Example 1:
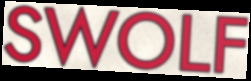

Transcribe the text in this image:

SWOLF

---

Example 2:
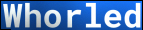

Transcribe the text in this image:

Whorled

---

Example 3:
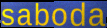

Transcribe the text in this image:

saboda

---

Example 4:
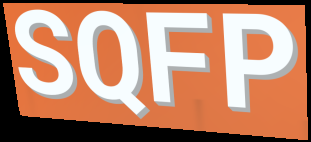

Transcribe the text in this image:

SQFP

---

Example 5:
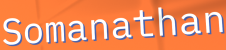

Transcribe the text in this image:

Somanathan